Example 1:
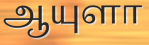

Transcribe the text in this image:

ஆயுளா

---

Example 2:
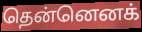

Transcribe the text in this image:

தென்னெனக்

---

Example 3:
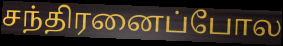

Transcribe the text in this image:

சந்திரனைப்போல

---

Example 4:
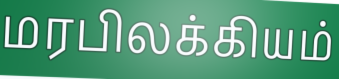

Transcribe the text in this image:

மரபிலக்கியம்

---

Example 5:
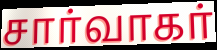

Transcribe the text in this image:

சார்வாகர்